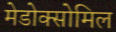
मेडोक्सोमिल